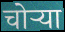
चोऱ्या